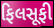
ફિલસૂફી